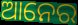
ଆନେର